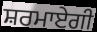
ਸ਼ਰਮਾਏਗੀ